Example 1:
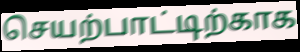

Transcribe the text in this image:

செயற்பாட்டிற்காக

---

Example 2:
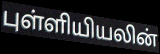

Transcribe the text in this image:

புள்ளியியலின்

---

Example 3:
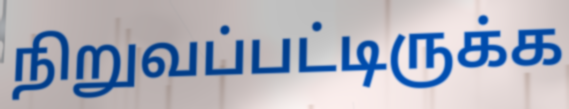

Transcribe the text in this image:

நிறுவப்பட்டிருக்க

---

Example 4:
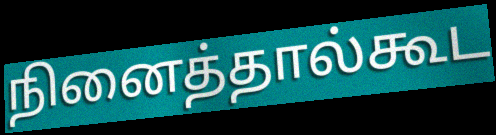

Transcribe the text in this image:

நினைத்தால்கூட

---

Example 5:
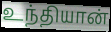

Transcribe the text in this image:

உந்தியான்